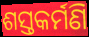
ଶସ୍ତକର୍ମଣି